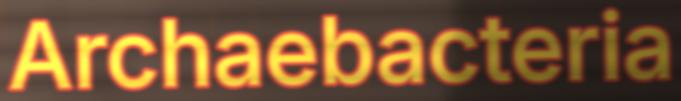
Archaebacteria